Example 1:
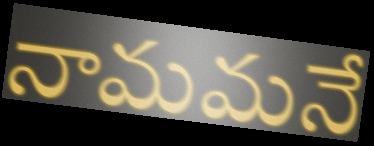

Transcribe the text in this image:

నామమనే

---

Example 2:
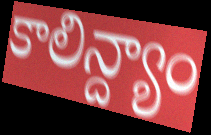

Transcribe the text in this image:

కాలిన్ద్యాం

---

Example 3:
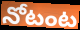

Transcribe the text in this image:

నోటంట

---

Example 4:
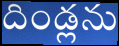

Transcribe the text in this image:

దిండ్లను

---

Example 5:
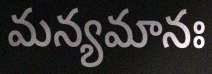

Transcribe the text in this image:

మన్యమానః